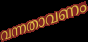
വന്നതാവണം